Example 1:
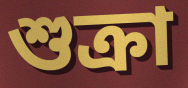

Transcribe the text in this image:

শুক্ৰা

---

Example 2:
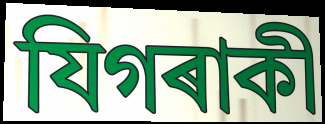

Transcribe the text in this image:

যিগৰাকী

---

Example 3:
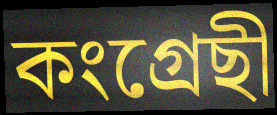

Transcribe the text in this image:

কংগ্ৰেছী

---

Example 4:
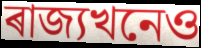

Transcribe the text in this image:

ৰাজ্যখনেও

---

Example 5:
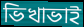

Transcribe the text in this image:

ভিখাভাই